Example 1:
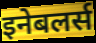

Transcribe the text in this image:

इनेबलर्स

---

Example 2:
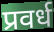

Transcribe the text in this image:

प्रवर्ध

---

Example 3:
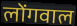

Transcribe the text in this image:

लोंगवाल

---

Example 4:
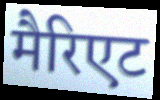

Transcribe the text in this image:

मैरिएट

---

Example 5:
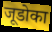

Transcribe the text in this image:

जूडोका